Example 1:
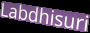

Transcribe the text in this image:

Labdhisuri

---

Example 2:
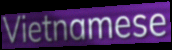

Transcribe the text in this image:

Vietnamese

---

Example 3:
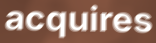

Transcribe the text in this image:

acquires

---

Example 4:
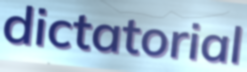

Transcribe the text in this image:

dictatorial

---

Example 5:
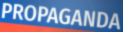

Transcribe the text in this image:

PROPAGANDA